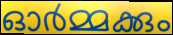
ഓർമ്മക്കും